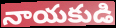
నాయకుడి